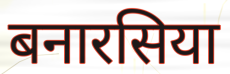
बनारसिया